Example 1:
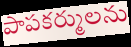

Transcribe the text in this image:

పాపకర్ములను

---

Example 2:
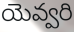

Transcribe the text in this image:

యెవ్వరి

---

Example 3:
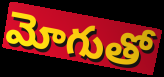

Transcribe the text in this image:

మోగుతో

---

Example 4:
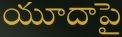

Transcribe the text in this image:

యూదాపై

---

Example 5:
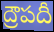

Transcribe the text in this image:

ద్రౌపదీ